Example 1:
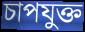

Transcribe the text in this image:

চাপযুক্ত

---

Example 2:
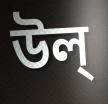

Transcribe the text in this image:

উল্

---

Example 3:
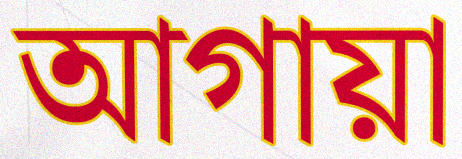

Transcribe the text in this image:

আগায়া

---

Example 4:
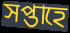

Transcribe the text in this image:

সপ্তাহে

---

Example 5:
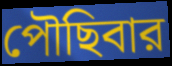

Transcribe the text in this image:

পৌছিবার